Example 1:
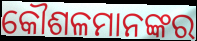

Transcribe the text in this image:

କୌଶଳମାନଙ୍କର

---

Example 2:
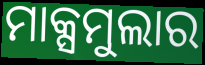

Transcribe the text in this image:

ମାକ୍ସମୁଲାର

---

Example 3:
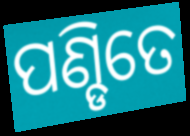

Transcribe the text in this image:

ପଣ୍ଡିତେ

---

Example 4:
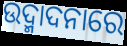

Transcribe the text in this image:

ଉଦ୍ମାଦନାରେ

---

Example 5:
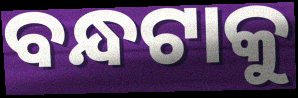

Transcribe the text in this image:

ବନ୍ଧଟାକୁ